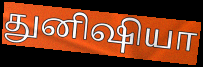
துனிஷியா